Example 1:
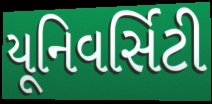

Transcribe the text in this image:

યૂનિવર્સિટી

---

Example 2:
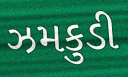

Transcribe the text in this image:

ઝમકુડી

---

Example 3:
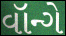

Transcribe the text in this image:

વૉન્ગે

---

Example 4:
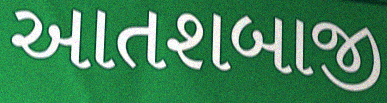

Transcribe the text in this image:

આતશબાજી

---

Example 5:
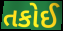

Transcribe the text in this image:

તકોઈ